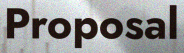
Proposal